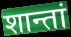
शान्तां